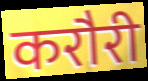
करौरी